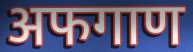
अफगाण